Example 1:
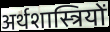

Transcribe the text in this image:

अर्थशास्त्रियों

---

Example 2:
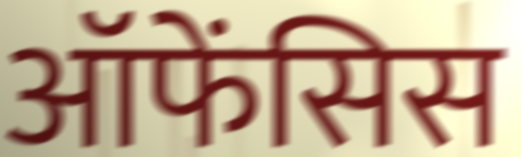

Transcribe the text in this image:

ऑफेंसिस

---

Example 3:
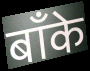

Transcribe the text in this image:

बाँके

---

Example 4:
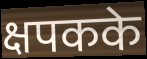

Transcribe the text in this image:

क्षपकके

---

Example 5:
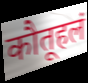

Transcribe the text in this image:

कौतूहलं